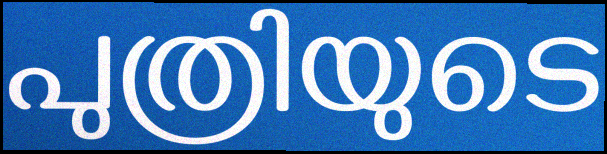
പുത്രിയുടെ